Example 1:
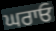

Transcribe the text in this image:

ਘਰਾਓ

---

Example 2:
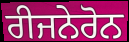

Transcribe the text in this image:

ਰੀਜਨੇਰੋਨ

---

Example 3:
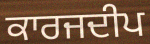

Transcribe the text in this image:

ਕਾਰਜਦੀਪ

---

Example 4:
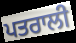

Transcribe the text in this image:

ਪਤਰਾਲੀ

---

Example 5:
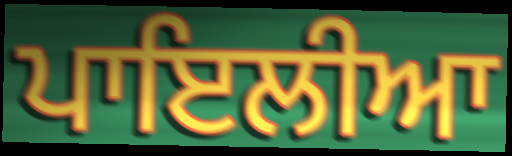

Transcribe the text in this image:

ਪਾਇਲੀਆ